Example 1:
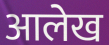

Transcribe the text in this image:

आलेख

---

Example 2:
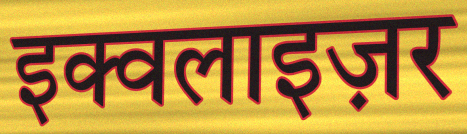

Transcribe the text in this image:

इक्वलाइज़र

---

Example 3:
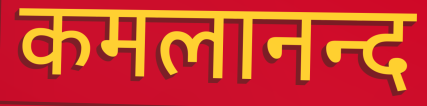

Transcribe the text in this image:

कमलानन्द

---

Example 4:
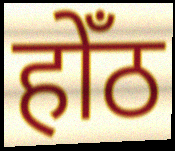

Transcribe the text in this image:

होँठ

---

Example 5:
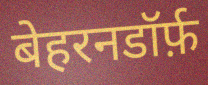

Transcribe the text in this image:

बेहरनडॉर्फ़